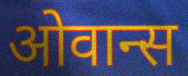
ओवान्स